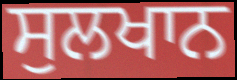
ਸੁਲਖਾਨ